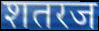
शतरज